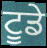
ਟੂਡੇ